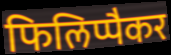
फिलिप्पैकर